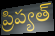
ప్రిప్యత్